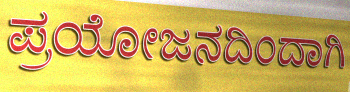
ಪ್ರಯೋಜನದಿಂದಾಗಿ